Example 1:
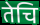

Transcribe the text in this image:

तेचि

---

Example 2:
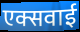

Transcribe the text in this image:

एक्सवाई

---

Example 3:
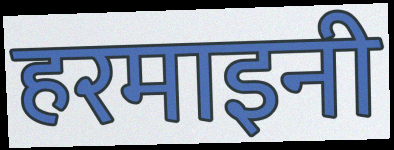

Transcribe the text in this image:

हरमाइनी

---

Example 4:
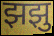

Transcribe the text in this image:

झझु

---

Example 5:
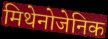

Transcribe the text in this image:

मिथेनोजेनिक